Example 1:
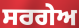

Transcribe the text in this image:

ਸਰਗੇਅ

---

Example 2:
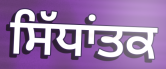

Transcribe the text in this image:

ਸਿੱਧਾਂਤਕ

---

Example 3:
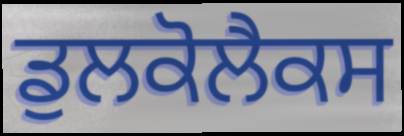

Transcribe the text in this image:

ਡੁਲਕੋਲੈਕਸ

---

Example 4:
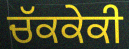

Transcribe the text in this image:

ਚੱਕਕੇਕੀ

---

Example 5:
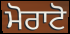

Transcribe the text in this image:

ਮੋਰਾਟੋ